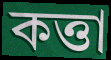
কত্তা